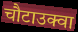
चौटाउक्वा